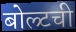
बोल्टची